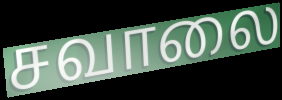
சவாலை